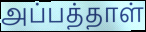
அப்பத்தாள்